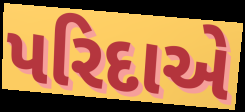
પરિદાએ